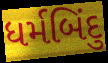
ધર્મબિંદુ